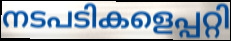
നടപടികളെപ്പറ്റി